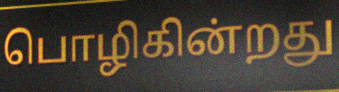
பொழிகின்றது